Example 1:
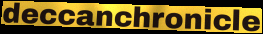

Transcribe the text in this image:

deccanchronicle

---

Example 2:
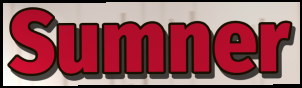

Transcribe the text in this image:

Sumner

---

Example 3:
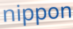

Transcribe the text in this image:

nippon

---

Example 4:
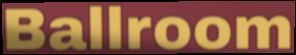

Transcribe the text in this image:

Ballroom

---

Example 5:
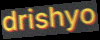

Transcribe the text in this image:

drishyo